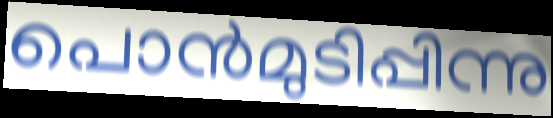
പൊൻമുടിപ്പിന്നു